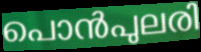
പൊൻപുലരി